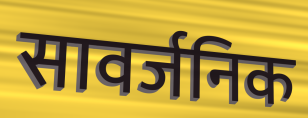
सावर्जनिक